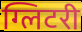
ग्लिटरी